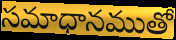
సమాధానముతో